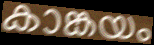
കാങ്കയം